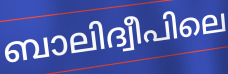
ബാലിദ്വീപിലെ